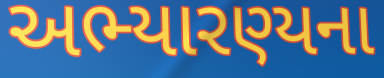
અભ્યારણ્યના